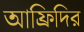
আফ্রিদির